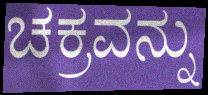
ಚಕ್ರವನ್ನು